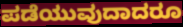
ಪಡೆಯುವುದಾದರೂ